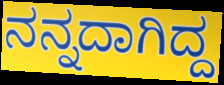
ನನ್ನದಾಗಿದ್ದ